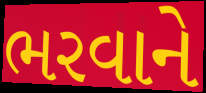
ભરવાને